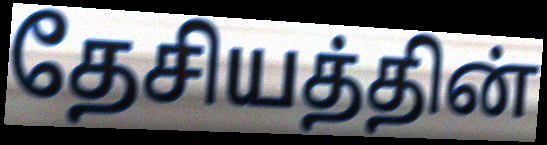
தேசியத்தின்